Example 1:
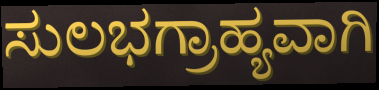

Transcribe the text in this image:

ಸುಲಭಗ್ರಾಹ್ಯವಾಗಿ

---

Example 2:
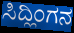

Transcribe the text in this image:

ಸಿದ್ಲಿಂಗನ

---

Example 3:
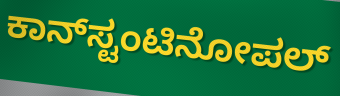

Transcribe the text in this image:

ಕಾನ್‍ಸ್ಟಂಟಿನೋಪಲ್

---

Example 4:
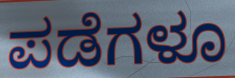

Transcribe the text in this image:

ಪಡೆಗಳೂ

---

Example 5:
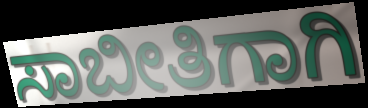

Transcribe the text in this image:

ಸಾಬೀತಿಗಾಗಿ